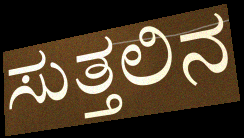
ಸುತ್ತಲಿನ